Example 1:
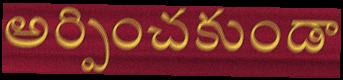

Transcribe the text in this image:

అర్పించకుండా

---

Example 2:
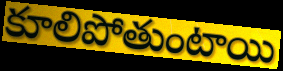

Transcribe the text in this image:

కూలిపోతుంటాయి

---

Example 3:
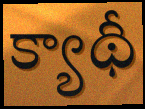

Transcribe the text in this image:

క్యాథీ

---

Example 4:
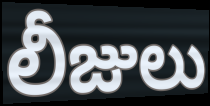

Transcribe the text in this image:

లీజులు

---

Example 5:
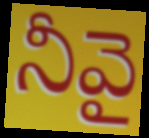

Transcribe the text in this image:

నీవై